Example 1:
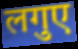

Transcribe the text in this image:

लगुए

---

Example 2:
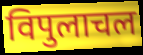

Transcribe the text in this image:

विपुलाचल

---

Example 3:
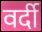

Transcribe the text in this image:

वर्दी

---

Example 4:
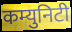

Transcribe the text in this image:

कम्युनिटी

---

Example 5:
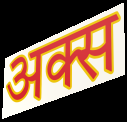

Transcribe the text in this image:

अक्स